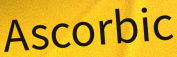
Ascorbic